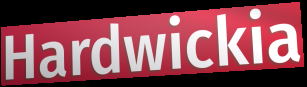
Hardwickia